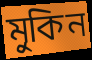
মুকিন